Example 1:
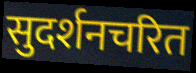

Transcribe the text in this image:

सुदर्शनचरित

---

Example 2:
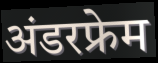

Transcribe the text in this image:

अंडरफ्रेम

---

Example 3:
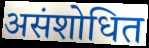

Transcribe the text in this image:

असंशोधित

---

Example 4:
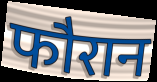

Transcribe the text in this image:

फौरान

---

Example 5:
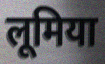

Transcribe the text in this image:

लूमिया